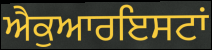
ਐਕੁਆਰਇਸਟਾਂ